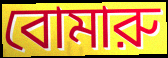
বোমাৰু